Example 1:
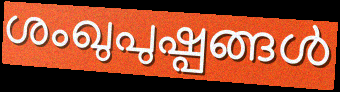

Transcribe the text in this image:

ശംഖുപുഷ്പങ്ങൾ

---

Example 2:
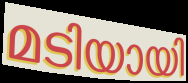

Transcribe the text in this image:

മടിയായി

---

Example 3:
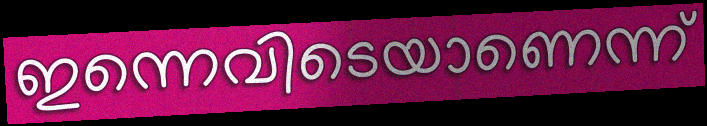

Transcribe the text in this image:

ഇന്നെവിടെയാണെന്ന്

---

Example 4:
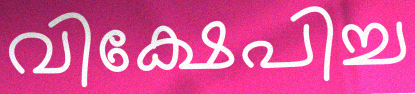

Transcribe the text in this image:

വിക്ഷേപിച്ച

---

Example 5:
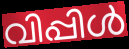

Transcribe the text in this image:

വിപ്പിൾ